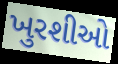
ખુરશીઓ